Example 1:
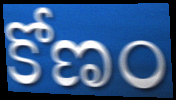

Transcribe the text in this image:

కోణం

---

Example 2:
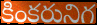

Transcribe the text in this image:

కింకరునిగ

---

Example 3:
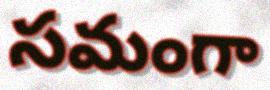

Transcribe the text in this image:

సమంగా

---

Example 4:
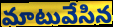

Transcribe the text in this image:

మాటువేసిన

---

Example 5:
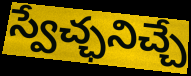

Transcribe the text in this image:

స్వేచ్ఛనిచ్చే